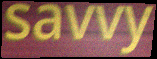
savvy